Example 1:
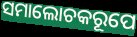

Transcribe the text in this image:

ସମାଲୋଚକରୂପେ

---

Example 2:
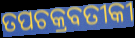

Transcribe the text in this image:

ତପଚକ୍ରବତୀକୀ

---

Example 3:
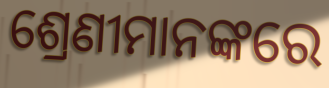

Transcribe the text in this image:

ଶ୍ରେଣୀମାନଙ୍କରେ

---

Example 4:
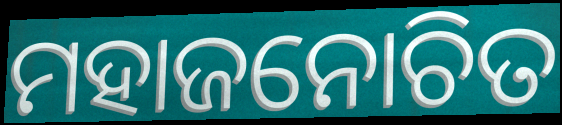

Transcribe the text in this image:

ମହାଜନୋଚିତ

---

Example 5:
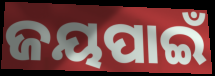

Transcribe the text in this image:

ଜୟପାଇଁ